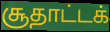
சூதாட்டக்